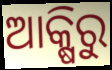
ଆକ୍ଷିରୁ